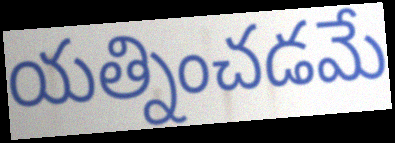
యత్నించడమే